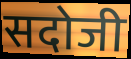
सदोजी